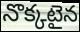
నొక్కటైన